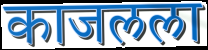
काजलला